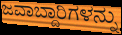
ಜವಾಬ್ದಾರಿಗಳನ್ನು